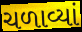
ચળાવ્યાં